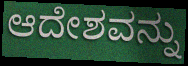
ಆದೇಶವನ್ನು